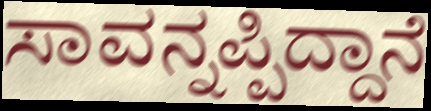
ಸಾವನ್ನಪ್ಪಿದ್ದಾನೆ